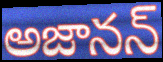
అజానన్